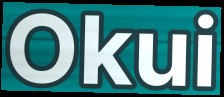
Okui